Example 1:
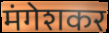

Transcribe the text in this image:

मंगेशकर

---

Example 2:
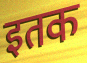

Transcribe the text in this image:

इतक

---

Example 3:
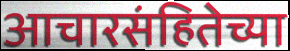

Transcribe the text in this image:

आचारसंहितेच्या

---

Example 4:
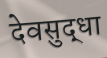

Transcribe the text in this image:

देवसुद्धा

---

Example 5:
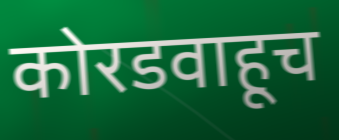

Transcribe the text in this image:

कोरडवाहूच